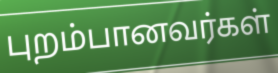
புறம்பானவர்கள்